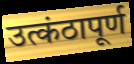
उत्कंठापूर्ण